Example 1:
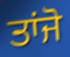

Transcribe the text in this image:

ਤਾਂਜੋ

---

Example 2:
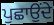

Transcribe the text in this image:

ਪੁਛਾਉਂਦੇ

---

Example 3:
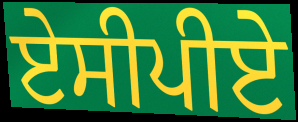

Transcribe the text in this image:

ਏਸੀਪੀਏ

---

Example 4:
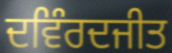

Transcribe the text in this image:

ਦਵਿੰਰਦਜੀਤ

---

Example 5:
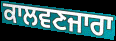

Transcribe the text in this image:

ਕਾਲਵਣਜਾਰਾ